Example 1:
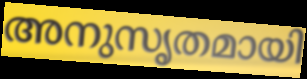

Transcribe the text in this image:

അനുസൃതമായി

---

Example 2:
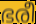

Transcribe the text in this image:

ഭരീ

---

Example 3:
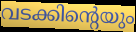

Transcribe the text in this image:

വടക്കിന്റെയും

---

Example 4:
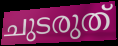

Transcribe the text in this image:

ചുടരുത്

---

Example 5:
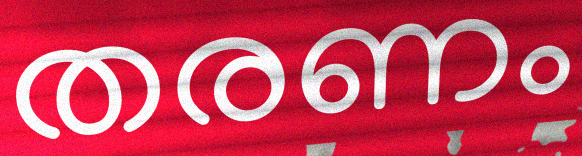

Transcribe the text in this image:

തരണം